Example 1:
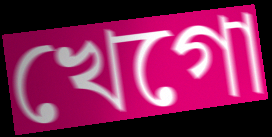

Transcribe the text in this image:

খেগো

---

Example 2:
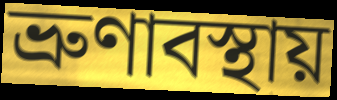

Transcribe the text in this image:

ভ্রুণাবস্থায়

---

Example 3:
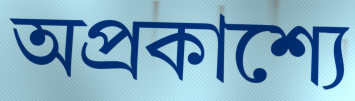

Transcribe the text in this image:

অপ্রকাশ্যে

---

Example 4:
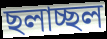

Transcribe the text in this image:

ছলাচ্ছল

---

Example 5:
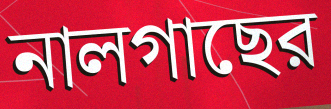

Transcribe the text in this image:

নালগাছের